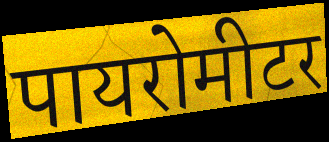
पायरोमीटर